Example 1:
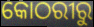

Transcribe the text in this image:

କୋଠରୀରୁ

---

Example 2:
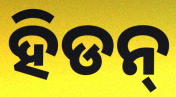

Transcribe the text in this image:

ହିଡନ୍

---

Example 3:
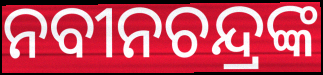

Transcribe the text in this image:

ନବୀନଚନ୍ଦ୍ରଙ୍କ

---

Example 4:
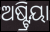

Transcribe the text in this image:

ଅଷ୍ଟ୍ରିୟା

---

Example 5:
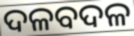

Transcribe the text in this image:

ଦଳବଦଳ